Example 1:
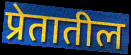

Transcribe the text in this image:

प्रेतातील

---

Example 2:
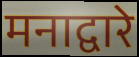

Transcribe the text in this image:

मनाद्वारे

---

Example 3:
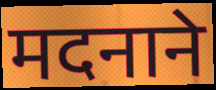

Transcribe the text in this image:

मदनाने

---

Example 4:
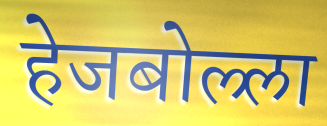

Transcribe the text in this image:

हेजबोल्ला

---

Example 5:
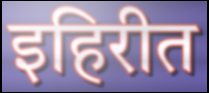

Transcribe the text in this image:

इहिरीत